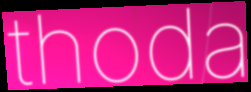
thoda